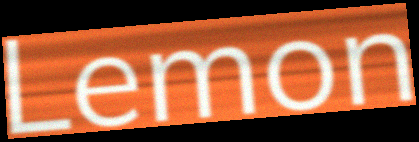
Lemon